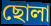
ছোলা